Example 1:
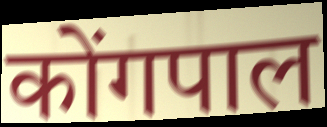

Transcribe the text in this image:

कोंगपाल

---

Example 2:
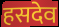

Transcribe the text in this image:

हसदेव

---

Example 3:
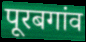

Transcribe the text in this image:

पूरबगांव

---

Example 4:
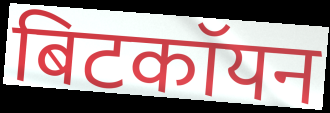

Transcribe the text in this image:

बिटकॉयन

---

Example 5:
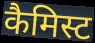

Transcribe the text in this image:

कैमिस्ट